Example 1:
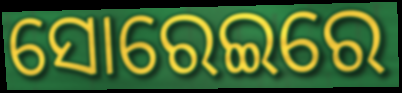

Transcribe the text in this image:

ସୋରେଇରେ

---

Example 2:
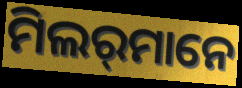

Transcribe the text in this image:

ମିଲର୍‌ମାନେ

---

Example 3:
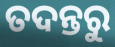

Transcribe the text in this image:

ତଦନ୍ତରୁ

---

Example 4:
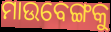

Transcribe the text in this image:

ମାଉବେଙ୍ଗକୁ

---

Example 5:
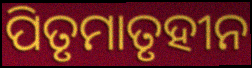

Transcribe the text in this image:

ପିତୃମାତୃହୀନ